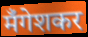
मँगेशकर